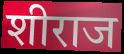
शीराज